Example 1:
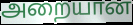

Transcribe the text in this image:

அறையான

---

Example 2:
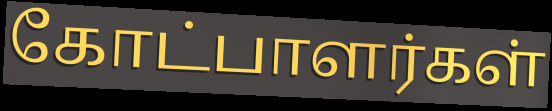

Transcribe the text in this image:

கோட்பாளர்கள்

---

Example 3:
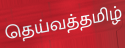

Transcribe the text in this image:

தெய்வத்தமிழ்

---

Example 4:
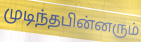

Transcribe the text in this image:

முடிந்தபின்னரும்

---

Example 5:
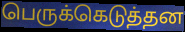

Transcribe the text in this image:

பெருக்கெடுத்தன